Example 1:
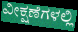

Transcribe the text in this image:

ವೀಕ್ಷಣೆಗಳಲ್ಲಿ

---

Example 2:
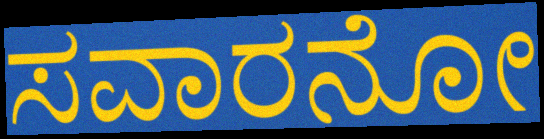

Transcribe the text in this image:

ಸವಾರನೋ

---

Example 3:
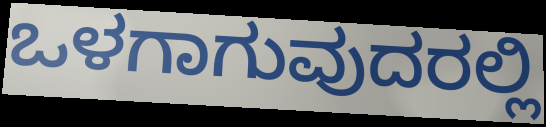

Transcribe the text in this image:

ಒಳಗಾಗುವುದರಲ್ಲಿ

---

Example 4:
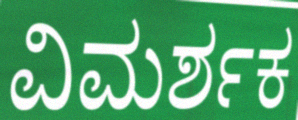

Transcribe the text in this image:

ವಿಮರ್ಶಕ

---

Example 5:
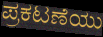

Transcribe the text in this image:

ಪ್ರಕಟಣೆಯು